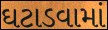
ઘટાડવામાં